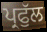
ਪ੍ਰਫੁੱਲ